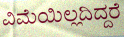
ವಿಮೆಯಿಲ್ಲದಿದ್ದರೆ